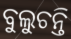
ବୁଲୁଚନ୍ତି